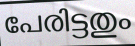
പേരിട്ടതും